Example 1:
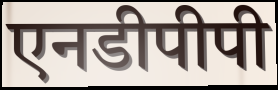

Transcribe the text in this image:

एनडीपीपी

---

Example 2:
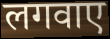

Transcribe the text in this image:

लगवाए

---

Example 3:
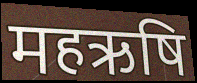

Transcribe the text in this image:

महऋषि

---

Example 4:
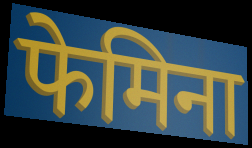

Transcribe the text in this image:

फेमिना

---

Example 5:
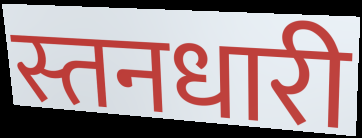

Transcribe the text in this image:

स्‍तनधारी